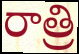
రాత్రి